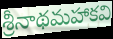
శ్రీనాథమహాకవి